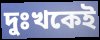
দুঃখকেই